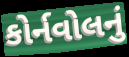
કોર્નવોલનું